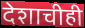
देशाचीही